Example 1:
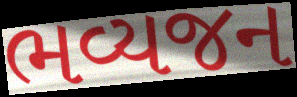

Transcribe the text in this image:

ભવ્યજન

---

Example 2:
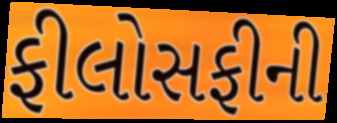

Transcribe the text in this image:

ફીલોસફીની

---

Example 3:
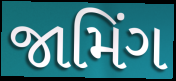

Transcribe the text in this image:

જામિંગ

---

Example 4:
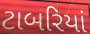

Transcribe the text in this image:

ટાબરિયાં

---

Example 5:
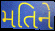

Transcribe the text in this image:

મતિને